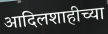
आदिलशाहीच्या